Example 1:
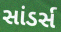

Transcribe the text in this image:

સાંડર્સ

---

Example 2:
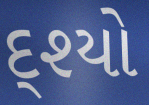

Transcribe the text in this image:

દ્શ્યો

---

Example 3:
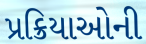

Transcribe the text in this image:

પ્રક્રિયાઓની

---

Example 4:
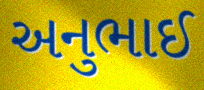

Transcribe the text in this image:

અનુભાઈ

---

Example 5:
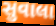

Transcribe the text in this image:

સુવાલા